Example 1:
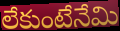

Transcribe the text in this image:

లేకుంటేనేమి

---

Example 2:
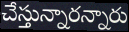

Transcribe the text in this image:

చేస్తున్నారన్నారు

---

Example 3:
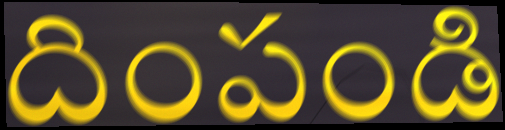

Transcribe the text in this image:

దింపండి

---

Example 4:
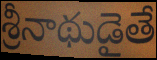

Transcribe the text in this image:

శ్రీనాథుడైతే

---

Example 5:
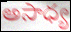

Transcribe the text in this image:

అసాధ్య